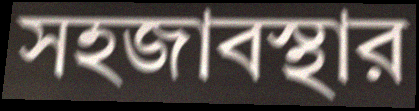
সহজাবস্থার